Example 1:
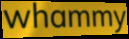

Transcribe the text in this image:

whammy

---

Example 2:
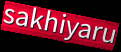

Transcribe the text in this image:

sakhiyaru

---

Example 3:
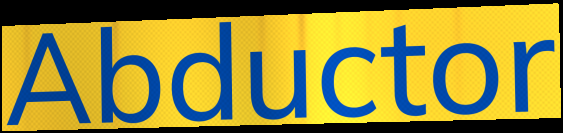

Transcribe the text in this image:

Abductor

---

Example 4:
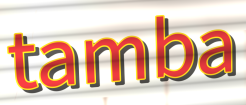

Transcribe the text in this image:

tamba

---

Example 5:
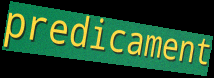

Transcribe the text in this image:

predicament